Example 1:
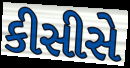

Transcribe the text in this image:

કીસીસે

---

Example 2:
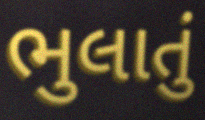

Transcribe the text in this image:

ભુલાતું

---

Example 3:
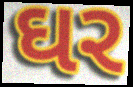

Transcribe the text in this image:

ઘર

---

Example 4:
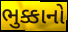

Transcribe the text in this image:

ભુક્કાનો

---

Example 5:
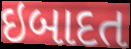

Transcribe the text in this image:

ઇબાદત